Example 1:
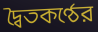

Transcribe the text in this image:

দ্বৈতকণ্ঠের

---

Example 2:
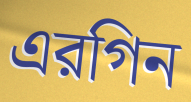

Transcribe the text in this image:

এরগিন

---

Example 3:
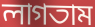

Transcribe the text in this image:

লাগতাম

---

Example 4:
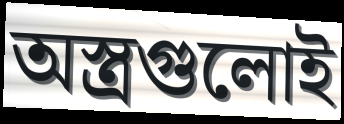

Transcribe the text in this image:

অস্ত্রগুলোই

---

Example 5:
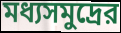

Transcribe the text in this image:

মধ্যসমুদ্রের